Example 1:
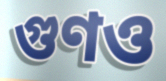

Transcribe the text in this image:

গুণও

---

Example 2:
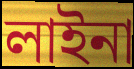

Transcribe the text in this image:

লাইনা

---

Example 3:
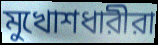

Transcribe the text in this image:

মুখোশধারীরা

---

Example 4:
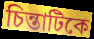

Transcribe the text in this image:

চিন্তাটিকে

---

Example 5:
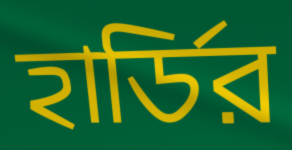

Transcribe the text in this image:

হার্ডির